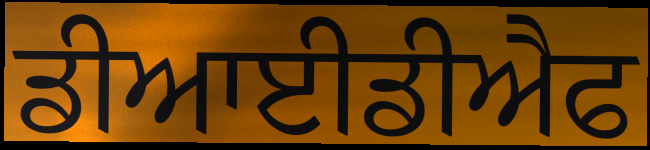
ਡੀਆਈਡੀਐਫ